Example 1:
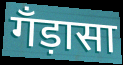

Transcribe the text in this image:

गँड़ासा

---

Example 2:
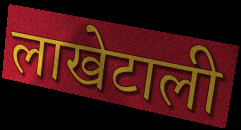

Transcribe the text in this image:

लाखेटाली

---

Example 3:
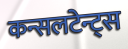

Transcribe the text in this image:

कन्सलटेन्ट्स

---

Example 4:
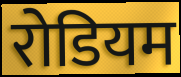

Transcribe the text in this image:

रोडियम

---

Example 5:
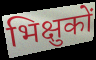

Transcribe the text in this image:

भिक्षुकों